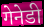
गेनेडी